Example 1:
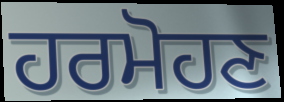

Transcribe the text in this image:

ਹਰਮੋਹਣ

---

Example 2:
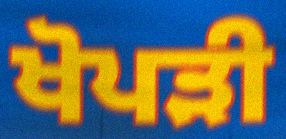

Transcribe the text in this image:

ਖੋਪੜੀ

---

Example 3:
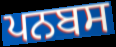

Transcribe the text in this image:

ਪਨਬਸ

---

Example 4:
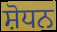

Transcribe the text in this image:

ਸ਼ੋਧਨ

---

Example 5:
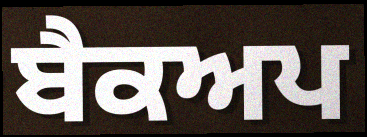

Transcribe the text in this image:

ਬੈਕਅਪ